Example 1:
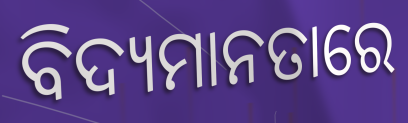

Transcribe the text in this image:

ବିଦ୍ୟମାନତାରେ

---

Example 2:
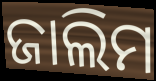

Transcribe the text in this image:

ଜାଲିମ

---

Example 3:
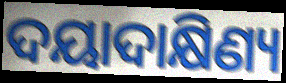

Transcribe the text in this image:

ଦୟାଦାକ୍ଷିଣ୍ୟ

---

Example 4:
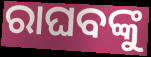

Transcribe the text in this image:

ରାଘବଙ୍କୁ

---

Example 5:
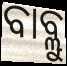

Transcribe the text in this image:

ବାବ୍ଲୁ